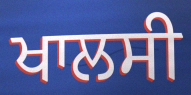
ਖਾਲਸੀ